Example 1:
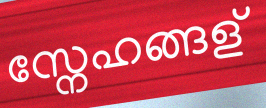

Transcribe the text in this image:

സ്നേഹങ്ങള്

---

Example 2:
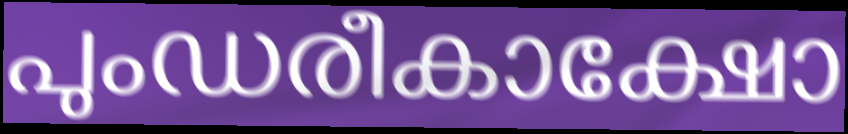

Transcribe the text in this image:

പുംഡരീകാക്ഷോ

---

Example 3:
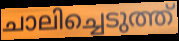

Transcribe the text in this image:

ചാലിച്ചെടുത്ത്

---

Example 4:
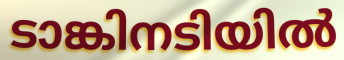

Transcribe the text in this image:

ടാങ്കിനടിയിൽ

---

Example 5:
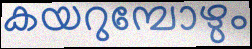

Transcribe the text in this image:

കയറുമ്പോഴും